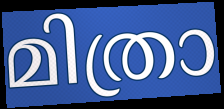
മിത്രാ